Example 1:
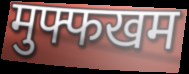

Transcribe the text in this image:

मुफ्फखम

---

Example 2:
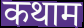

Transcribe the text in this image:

कथाम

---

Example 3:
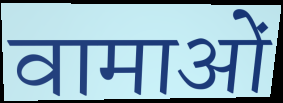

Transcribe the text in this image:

वामाओं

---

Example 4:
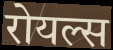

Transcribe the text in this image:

रोयल्स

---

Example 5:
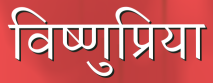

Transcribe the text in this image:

विष्णुप्रिया